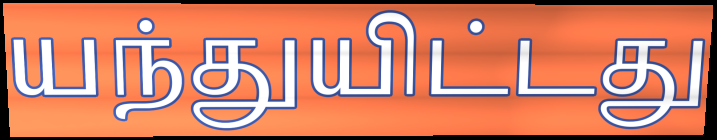
யந்துயிட்டது